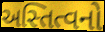
અસ્તિત્વનો